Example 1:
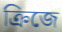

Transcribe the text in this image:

ক্রিজে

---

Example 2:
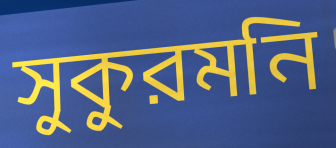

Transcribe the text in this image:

সুকুরমনি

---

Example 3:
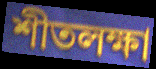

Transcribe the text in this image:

শীতলক্ষা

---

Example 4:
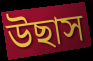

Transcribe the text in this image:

উছাস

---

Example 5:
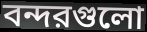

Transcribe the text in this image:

বন্দরগুলো